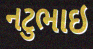
નટુભાઇ